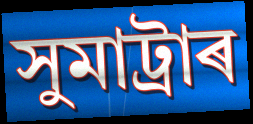
সুমাট্ৰাৰ